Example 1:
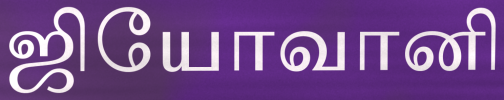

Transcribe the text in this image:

ஜியோவானி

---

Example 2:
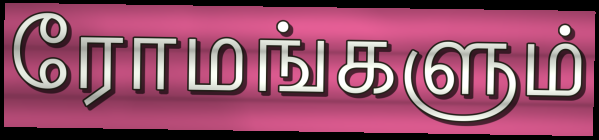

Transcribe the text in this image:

ரோமங்களும்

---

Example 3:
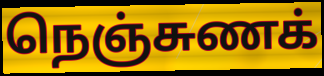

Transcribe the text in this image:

நெஞ்சுணக்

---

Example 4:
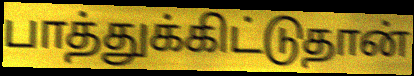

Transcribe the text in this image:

பாத்துக்கிட்டுதான்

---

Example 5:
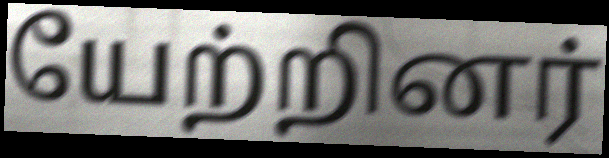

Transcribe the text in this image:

யேற்றினர்